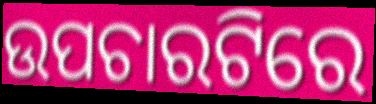
ଉପଚାରଟିରେ